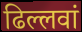
ढिल्लवां